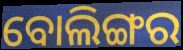
ବୋଲିଙ୍ଗର